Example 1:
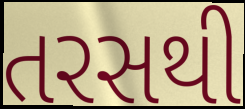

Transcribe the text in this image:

તરસથી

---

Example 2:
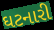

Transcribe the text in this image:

ઘટનારી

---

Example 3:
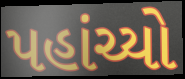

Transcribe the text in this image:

પહાંચ્યો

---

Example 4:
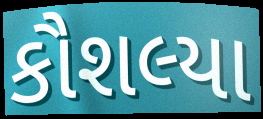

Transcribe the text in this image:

કૌશલ્યા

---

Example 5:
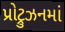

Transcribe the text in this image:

પ્રોટ્રુઝનમાં